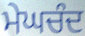
ਮੇਘਚੰਦ